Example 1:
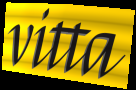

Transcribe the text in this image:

vitta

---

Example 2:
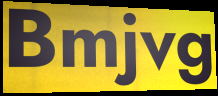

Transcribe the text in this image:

Bmjvg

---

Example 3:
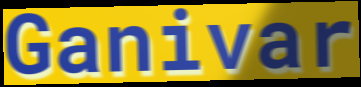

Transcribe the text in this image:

Ganivar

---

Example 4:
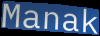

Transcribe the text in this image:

Manak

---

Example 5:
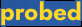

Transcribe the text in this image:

probed